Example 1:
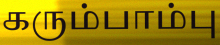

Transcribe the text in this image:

கரும்பாம்பு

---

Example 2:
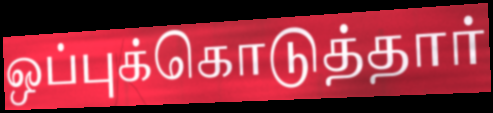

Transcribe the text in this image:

ஒப்புக்கொடுத்தார்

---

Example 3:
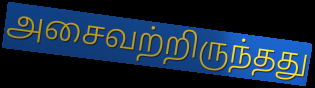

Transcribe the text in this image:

அசைவற்றிருந்தது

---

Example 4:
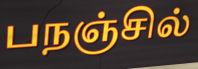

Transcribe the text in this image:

பநஞ்சில்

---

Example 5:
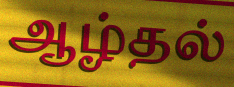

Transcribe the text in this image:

ஆழ்தல்